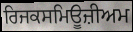
ਰਿਜਕਸਮਿਊਜ਼ੀਅਮ